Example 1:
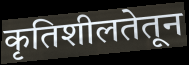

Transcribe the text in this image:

कृतिशीलतेतून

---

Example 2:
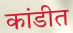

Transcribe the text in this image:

कांडीत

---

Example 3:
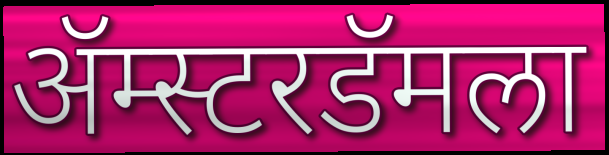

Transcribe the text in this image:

ॲम्स्टरडॅमला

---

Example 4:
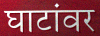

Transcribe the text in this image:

घाटांवर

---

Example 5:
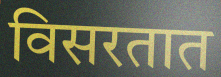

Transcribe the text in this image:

विसरतात